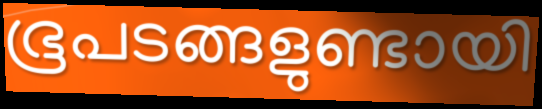
ഭൂപടങ്ങളുണ്ടായി